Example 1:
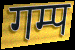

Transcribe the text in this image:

गम्प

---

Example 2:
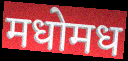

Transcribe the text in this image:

मधोमध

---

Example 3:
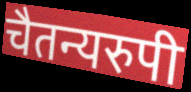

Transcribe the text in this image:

चैतन्यरुपी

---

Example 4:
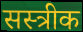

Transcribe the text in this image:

सस्त्रीक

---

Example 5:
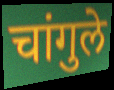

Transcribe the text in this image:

चांगुले